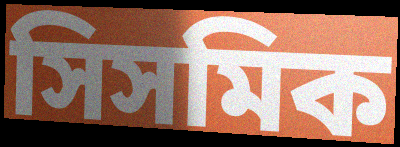
সিসমিক